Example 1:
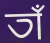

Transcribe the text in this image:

তাঁ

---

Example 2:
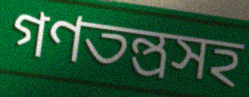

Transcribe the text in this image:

গণতন্ত্রসহ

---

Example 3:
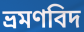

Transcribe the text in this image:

ভ্রমণবিদ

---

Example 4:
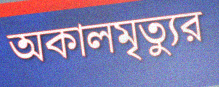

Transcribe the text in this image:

অকালমৃত্যুর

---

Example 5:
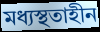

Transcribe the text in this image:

মধ্যস্থতাহীন